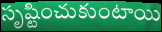
సృష్టించుకుంటాయి